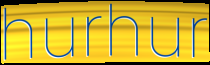
hurhur